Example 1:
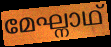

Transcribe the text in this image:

മേഘ്നാഥ്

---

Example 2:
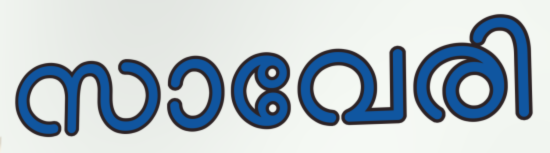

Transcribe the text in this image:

സാവേരി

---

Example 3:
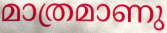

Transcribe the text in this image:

മാത്രമാണു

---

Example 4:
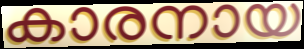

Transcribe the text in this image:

കാരനായ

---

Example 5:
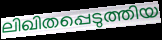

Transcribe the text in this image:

ലിഖിതപ്പെടുത്തിയ